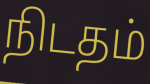
நிடதம்